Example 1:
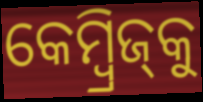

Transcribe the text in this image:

କେମ୍ୱ୍ରିଜ୍‌କୁ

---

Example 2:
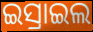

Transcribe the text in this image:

ଇସ୍ରାଇଲ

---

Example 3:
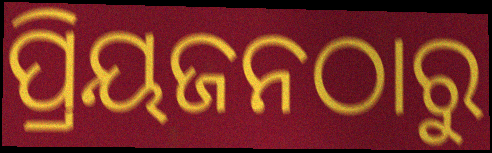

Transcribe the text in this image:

ପ୍ରିୟଜନଠାରୁ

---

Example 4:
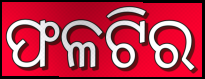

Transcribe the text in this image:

ଫଳଟିର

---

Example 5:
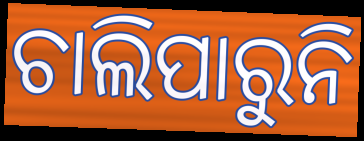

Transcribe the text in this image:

ଚାଲିପାରୁନି